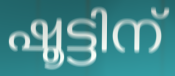
ഷൂട്ടിന്